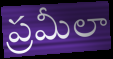
ప్రమీలా